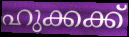
ഹുക്കക്ക്